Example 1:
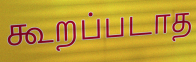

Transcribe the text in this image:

கூறப்படாத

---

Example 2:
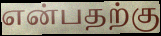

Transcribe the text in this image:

என்பதற்கு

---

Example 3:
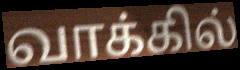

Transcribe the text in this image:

வாக்கில்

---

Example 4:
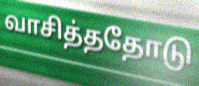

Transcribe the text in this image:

வாசித்ததோடு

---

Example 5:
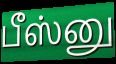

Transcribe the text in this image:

பீஸ்னு